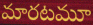
మారటమూ